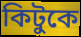
কিটুকে